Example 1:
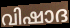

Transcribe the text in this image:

വിഷാദ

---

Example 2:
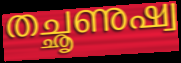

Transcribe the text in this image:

തച്ഛൃണുഷ്വ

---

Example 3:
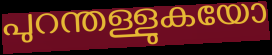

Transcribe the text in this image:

പുറന്തള്ളുകയോ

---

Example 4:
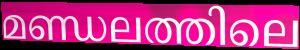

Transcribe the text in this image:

മണ്ഡലത്തിലെ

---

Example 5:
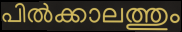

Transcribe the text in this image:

പിൽക്കാലത്തും